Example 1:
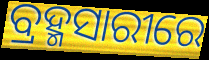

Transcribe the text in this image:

ବ୍ରହ୍ମସାରୀରେ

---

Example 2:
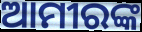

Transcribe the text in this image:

ଆମୀରଙ୍କ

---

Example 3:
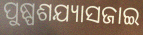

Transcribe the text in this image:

ପୁଷ୍ପଶଯ୍ୟାସଜାଇ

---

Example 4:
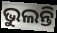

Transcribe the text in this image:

ଭୁଲନ୍ତି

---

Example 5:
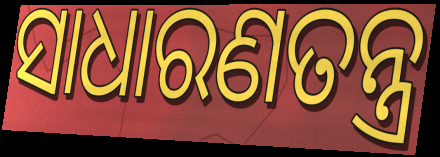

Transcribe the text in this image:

ସାଧାରଣତନ୍ତ୍ର